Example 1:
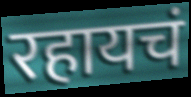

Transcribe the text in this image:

रहायचं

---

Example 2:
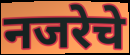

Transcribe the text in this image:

नजरेचे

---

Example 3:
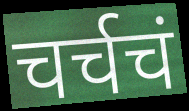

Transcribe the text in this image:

चर्चचं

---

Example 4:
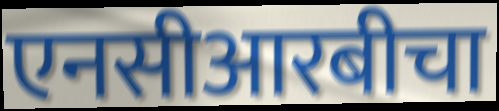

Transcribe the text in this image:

एनसीआरबीचा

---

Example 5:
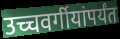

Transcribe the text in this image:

उच्चवर्गीयांपर्यंत